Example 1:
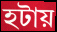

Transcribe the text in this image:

হটায়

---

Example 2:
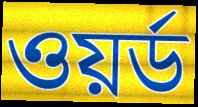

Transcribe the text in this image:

ওয়র্ড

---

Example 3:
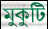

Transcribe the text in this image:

মুকুটি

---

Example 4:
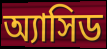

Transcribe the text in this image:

অ্যাসিড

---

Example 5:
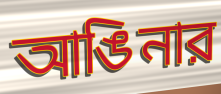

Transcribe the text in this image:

আঙিনার